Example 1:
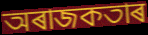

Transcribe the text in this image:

অৰাজকতাৰ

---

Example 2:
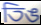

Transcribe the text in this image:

তিঙ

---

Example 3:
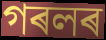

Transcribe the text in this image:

গৰলৰ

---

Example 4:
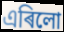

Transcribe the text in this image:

এৰিলো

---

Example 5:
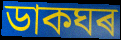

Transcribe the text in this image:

ডাকঘৰ